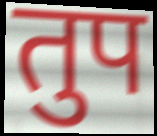
तुप